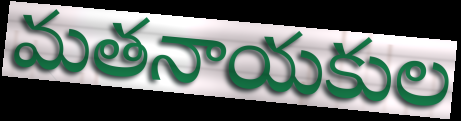
మతనాయకుల